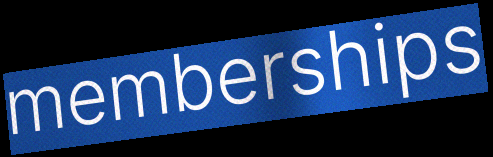
memberships